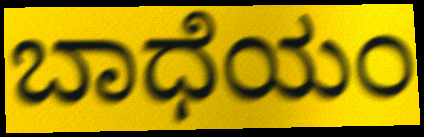
ಬಾಧೆಯಂ